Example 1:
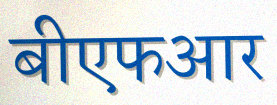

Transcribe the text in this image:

बीएफआर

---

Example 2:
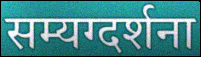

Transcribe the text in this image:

सम्यग्दर्शना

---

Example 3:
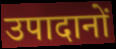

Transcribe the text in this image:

उपादानों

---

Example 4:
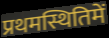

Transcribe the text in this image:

प्रथमस्थितिमें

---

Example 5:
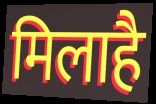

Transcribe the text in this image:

मिलाहै